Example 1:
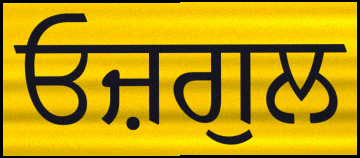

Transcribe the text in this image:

ਓਜ਼ਗੁਲ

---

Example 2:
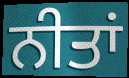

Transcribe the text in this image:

ਨੀਤਾਂ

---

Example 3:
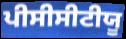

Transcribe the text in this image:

ਪੀਸੀਸੀਟੀਯੂ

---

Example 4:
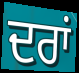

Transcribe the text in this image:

ਦਰਾਂ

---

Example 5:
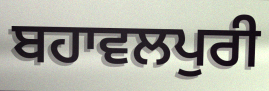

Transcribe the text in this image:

ਬਹਾਵਲਪੁਰੀ